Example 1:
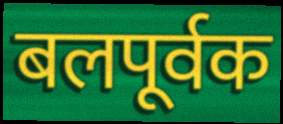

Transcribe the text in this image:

बलपूर्वक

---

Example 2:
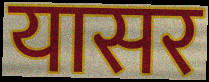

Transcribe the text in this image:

यासर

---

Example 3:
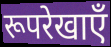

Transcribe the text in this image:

रूपरेखाएँ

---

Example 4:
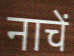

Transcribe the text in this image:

नाचें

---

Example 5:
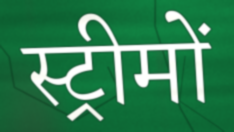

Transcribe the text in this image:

स्ट्रीमों